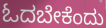
ಓದಬೇಕೆಂದು